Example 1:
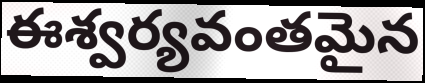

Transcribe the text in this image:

ఈశ్వర్యవంతమైన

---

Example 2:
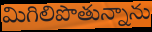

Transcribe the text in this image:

మిగిలిపొతున్నాను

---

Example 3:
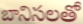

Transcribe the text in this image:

బానిసలతో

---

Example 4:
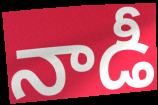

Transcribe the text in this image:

నాడీ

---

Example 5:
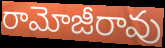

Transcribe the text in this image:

రామోజీరావు